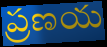
ప్రణయ